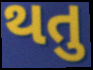
થતુ